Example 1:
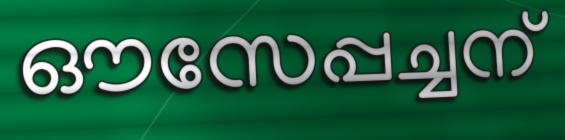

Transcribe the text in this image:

ഔസേപ്പച്ചന്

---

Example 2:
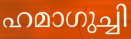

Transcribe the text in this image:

ഹമാഗുച്ചി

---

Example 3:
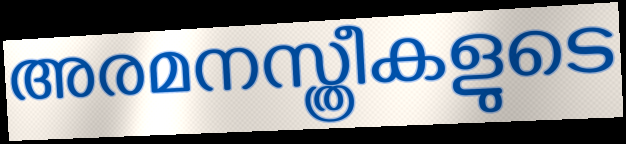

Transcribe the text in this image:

അരമനസ്ത്രീകളുടെ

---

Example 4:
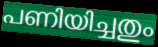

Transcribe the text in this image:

പണിയിച്ചതും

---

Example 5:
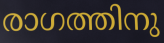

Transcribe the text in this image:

രാഗത്തിനു